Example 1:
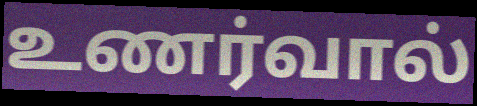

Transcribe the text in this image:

உணர்வால்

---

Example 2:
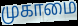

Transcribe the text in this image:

முகாமை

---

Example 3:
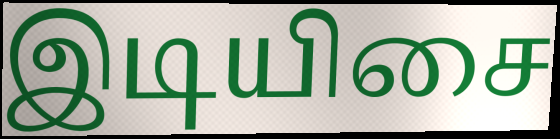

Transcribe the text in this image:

இடியிசை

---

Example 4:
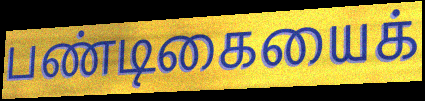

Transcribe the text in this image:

பண்டிகையைக்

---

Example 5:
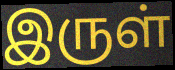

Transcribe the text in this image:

இருள்